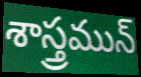
శాస్త్రమున్